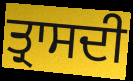
ਤ੍ਰਾਸਦੀ